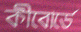
কীবোর্ডে